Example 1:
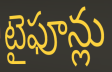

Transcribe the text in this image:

టైఫూన్లు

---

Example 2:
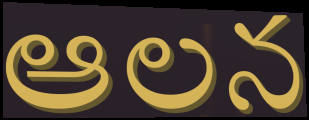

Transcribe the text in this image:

ఆలన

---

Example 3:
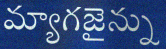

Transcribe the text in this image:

మ్యాగజైన్ను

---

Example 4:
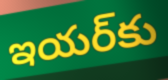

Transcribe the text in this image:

ఇయర్‌కు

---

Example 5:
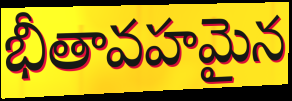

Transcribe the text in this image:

భీతావహమైన